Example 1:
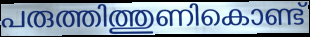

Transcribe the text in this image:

പരുത്തിത്തുണികൊണ്ട്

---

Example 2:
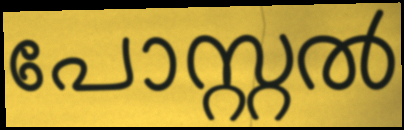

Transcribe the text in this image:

പോസ്റ്റൽ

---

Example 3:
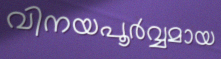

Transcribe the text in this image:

വിനയപൂർവ്വമായ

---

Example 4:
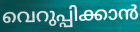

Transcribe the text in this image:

വെറുപ്പിക്കാൻ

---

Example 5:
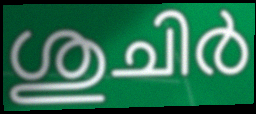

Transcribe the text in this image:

ശുചിർ